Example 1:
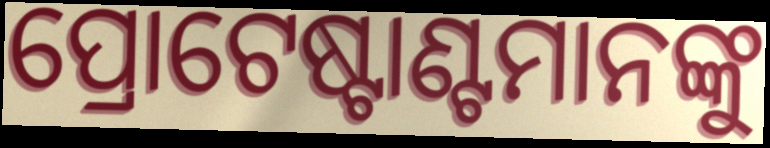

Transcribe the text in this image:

ପ୍ରୋଟେଷ୍ଟାଣ୍ଟମାନଙ୍କୁ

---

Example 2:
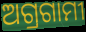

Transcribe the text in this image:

ଅଗ୍ରଗାମୀ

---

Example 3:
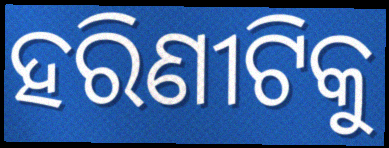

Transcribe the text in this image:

ହରିଣୀଟିକୁ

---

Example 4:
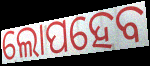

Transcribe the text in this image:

ଲୋପହେବ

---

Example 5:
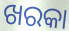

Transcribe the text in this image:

ଖରକା